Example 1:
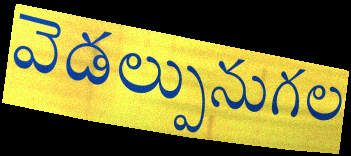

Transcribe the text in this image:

వెడల్పునుగల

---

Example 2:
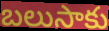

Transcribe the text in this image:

బలుసాకు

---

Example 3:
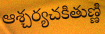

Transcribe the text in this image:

ఆశ్చర్యచకితుణ్ణి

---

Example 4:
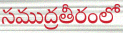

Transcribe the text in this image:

సముద్రతీరంలో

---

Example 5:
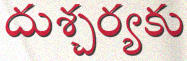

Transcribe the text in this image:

దుశ్చర్యకు